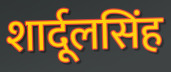
शार्दूलसिंह